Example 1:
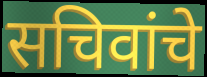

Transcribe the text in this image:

सचिवांचे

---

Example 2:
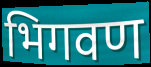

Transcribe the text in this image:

भिगवण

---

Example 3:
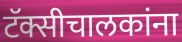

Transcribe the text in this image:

टॅक्सीचालकांना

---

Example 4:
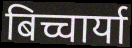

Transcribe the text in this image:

बिच्चार्या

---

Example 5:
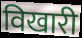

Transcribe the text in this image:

विखारी